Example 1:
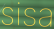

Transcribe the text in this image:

sisa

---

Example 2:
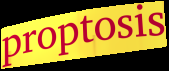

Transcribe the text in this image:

proptosis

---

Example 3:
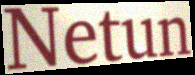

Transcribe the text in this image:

Netun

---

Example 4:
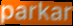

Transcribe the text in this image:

parkar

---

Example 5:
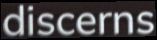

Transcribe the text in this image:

discerns